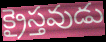
క్రైస్తవుడు